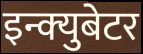
इन्क्‍युबेटर